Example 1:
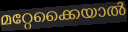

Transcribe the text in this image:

മറ്റേക്കൈയാൽ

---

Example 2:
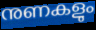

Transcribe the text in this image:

നുണകളും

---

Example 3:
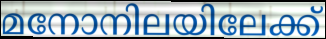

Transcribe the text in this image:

മനോനിലയിലേക്ക്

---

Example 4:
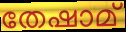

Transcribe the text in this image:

തേഷാമ്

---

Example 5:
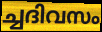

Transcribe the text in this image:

ച്ചദിവസം